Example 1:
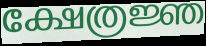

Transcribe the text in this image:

ക്ഷേത്രജ്ഞ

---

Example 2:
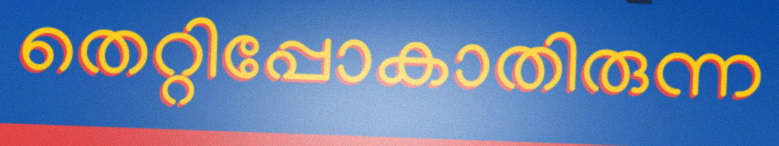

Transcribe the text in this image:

തെറ്റിപ്പോകാതിരുന്ന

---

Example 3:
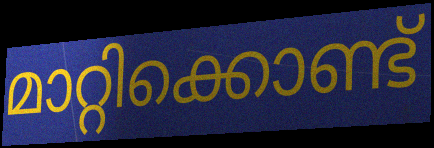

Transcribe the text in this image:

മാറ്റിക്കൊണ്ട്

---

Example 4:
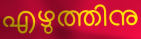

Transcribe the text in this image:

എഴുത്തിനു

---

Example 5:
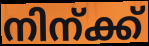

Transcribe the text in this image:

നിന്ക്ക്